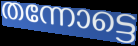
തന്നോട്ടെ